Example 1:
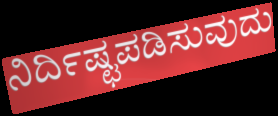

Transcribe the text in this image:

ನಿರ್ದಿಷ್ಟಪಡಿಸುವುದು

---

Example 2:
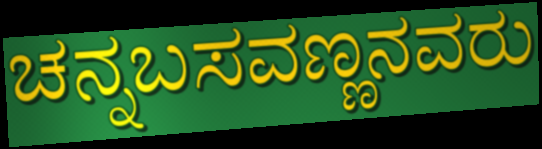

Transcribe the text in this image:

ಚನ್ನಬಸವಣ್ಣನವರು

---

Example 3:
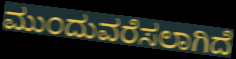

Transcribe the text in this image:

ಮುಂದುವರೆಸಲಾಗಿದೆ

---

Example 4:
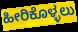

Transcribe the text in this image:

ಹೀರಿಕೊಳ್ಳಲು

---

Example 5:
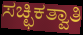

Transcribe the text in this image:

ಸಚ್ಛಿಕತ್ವಾತಿ